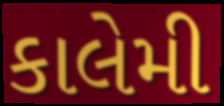
કાલેમી